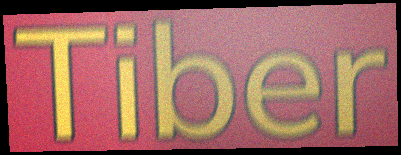
Tiber